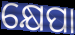
କ୍ଷେପା